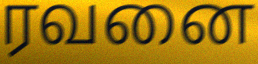
ரவனை